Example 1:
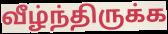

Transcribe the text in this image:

வீழ்ந்திருக்க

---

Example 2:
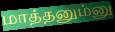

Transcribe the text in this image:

மாத்தனும்னு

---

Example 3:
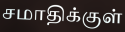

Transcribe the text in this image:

சமாதிக்குள்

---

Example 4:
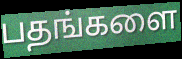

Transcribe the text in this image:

பதங்களை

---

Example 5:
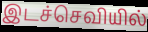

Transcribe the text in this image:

இடச்செவியில்